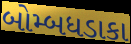
બોમ્બધડાકા